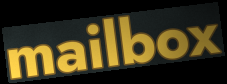
mailbox